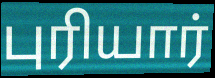
புரியார்